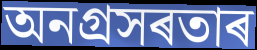
অনগ্ৰসৰতাৰ